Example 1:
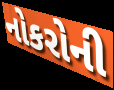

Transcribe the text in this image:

નોકરોની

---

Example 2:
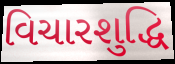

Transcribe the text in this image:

વિચારશુદ્ધિ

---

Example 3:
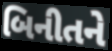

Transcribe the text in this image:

બિનીતને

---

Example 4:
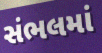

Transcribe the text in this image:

સંભલમાં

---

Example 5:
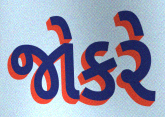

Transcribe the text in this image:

જોકરે